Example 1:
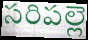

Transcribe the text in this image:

సరిపల్లె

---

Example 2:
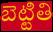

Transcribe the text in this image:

బెట్టితి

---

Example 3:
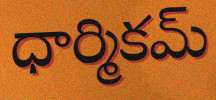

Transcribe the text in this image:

ధార్మికమ్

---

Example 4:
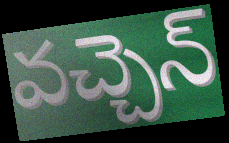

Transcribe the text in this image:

వచ్చెన్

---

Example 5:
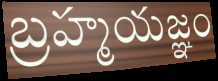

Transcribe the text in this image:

బ్రహ్మయజ్ఞం